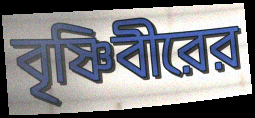
বৃষ্ণিবীরের